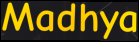
Madhya